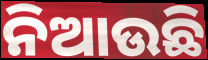
ନିଆଉଛି